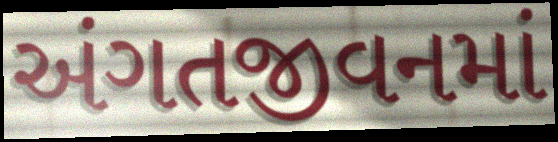
અંગતજીવનમાં